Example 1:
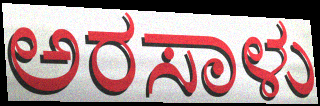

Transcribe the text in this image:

ಅರಸಾಳು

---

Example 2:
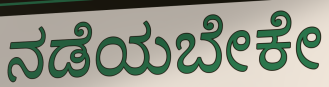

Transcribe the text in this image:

ನಡೆಯಬೇಕೇ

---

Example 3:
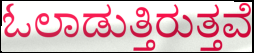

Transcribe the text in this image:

ಓಲಾಡುತ್ತಿರುತ್ತವೆ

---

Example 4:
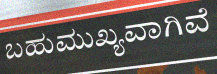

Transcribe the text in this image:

ಬಹುಮುಖ್ಯವಾಗಿವೆ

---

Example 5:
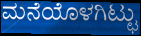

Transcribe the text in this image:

ಮನೆಯೊಳಗಿಟ್ಟು